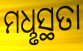
ମଧୢସ୍ଥତା